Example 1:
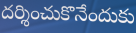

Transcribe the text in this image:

దర్శించుకొనేందుకు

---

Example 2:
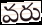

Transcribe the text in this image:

వరు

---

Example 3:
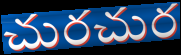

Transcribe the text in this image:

చురచుర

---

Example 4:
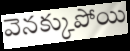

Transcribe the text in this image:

వెనక్కుపోయి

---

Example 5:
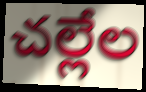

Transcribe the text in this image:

చల్లేల